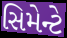
સિમેન્ટે